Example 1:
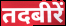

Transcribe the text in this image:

तदबीरें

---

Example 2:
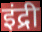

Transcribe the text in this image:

इंद्री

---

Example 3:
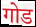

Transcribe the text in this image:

गोड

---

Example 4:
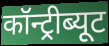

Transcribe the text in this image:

कॉन्ट्रीब्यूट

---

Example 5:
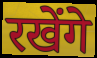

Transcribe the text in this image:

रखेंगे